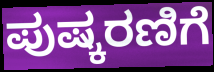
ಪುಷ್ಕರಣಿಗೆ